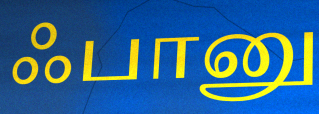
ஃபானு